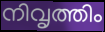
നിവൃത്തിം